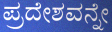
ಪ್ರದೇಶವನ್ನೇ